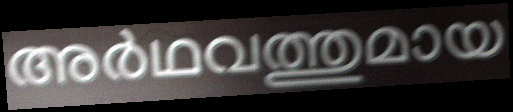
അർഥവത്തുമായ